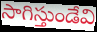
సాగిస్తుండేవి